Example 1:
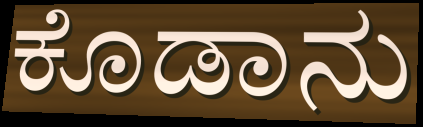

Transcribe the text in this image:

ಕೊಡಾನು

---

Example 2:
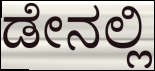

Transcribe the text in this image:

ಡೇನಲ್ಲಿ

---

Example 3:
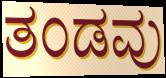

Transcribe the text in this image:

ತಂಡವು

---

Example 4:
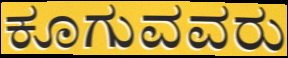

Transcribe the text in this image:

ಕೂಗುವವರು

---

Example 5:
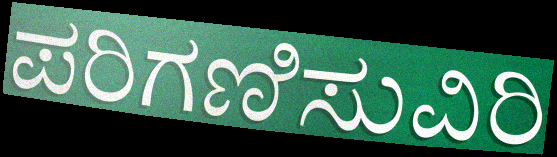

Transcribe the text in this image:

ಪರಿಗಣಿಸುವಿರಿ